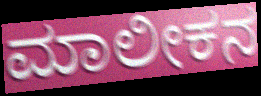
ಮಾಲೀಕನ